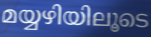
മയ്യഴിയിലൂടെ